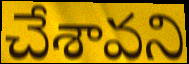
చేశావని